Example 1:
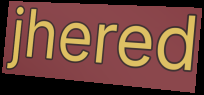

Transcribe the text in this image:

jhered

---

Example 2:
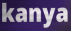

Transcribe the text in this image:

kanya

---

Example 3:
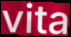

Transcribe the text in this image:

vita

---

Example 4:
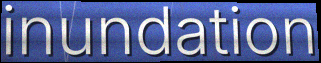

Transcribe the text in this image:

inundation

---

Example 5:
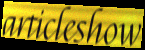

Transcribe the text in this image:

articleshow